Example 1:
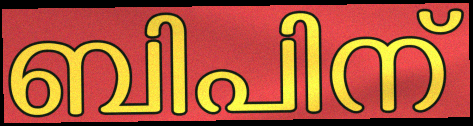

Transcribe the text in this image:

ബിപിന്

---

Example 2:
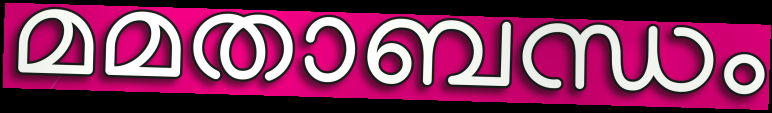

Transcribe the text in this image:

മമതാബന്ധം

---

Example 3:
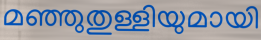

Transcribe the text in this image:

മഞ്ഞുതുള്ളിയുമായി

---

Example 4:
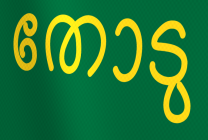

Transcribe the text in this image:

തോടു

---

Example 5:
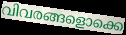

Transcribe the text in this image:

വിവരങ്ങളൊക്കെ